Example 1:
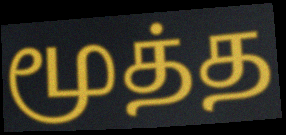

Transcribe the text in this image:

மூத்த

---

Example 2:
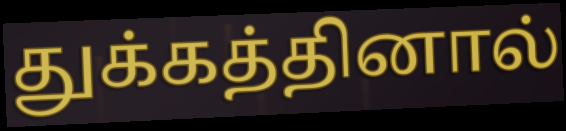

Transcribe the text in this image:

துக்கத்தினால்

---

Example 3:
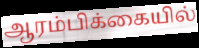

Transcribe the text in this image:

ஆரம்பிக்கையில்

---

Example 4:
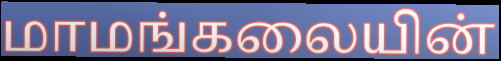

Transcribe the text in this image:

மாமங்கலையின்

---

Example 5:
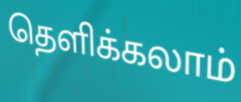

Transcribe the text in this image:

தெளிக்கலாம்